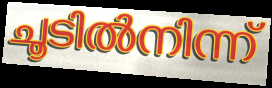
ചൂടിൽനിന്ന്